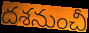
దశనుంచీ